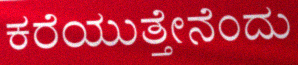
ಕರೆಯುತ್ತೇನೆಂದು